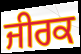
ਜੀਰਕ